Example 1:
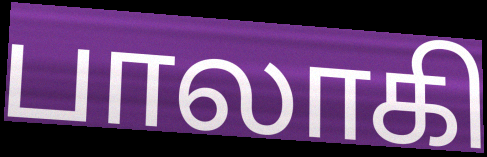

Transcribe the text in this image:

பாலாகி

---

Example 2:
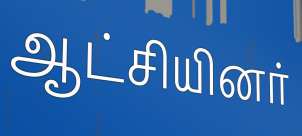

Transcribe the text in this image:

ஆட்சியினர்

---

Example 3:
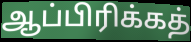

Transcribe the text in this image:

ஆப்பிரிக்கத்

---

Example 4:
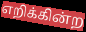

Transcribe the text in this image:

எறிக்கின்ற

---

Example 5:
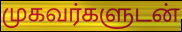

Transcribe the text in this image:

முகவர்களுடன்